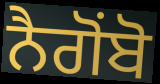
ਨੈਗੋਂਬੋ